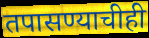
तपासण्याचीही